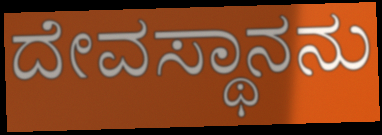
ದೇವಸ್ಥಾನನು